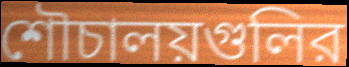
শৌচালয়গুলির